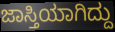
ಜಾಸ್ತಿಯಾಗಿದ್ದು